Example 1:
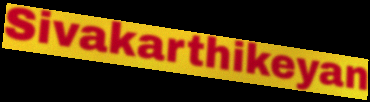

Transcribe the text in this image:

Sivakarthikeyan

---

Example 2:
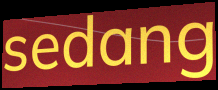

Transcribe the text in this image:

sedang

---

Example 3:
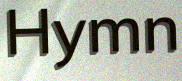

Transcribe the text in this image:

Hymn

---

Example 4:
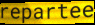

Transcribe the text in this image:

repartee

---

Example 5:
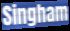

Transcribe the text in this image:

Singham